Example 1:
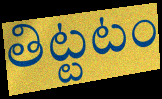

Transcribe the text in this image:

తిట్టటం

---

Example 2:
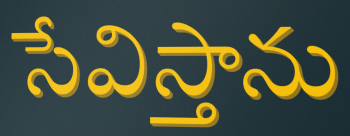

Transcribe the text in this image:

సేవిస్తాను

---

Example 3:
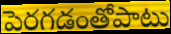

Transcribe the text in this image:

పెరగడంతోపాటు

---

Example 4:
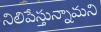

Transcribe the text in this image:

నిలిపేస్తున్నామని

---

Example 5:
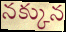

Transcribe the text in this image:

నక్కున